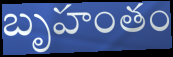
బృహంతం